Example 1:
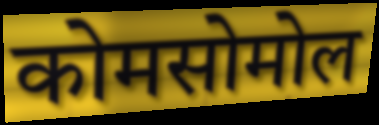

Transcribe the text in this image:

कोमसोमोल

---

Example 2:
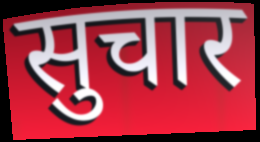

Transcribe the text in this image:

सुचार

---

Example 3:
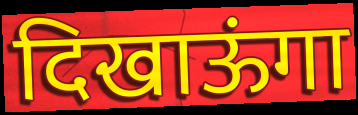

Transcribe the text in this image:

दिखाऊंगा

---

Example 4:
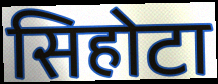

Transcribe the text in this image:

सिहोटा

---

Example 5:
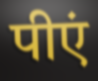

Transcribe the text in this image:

पीएं